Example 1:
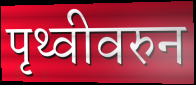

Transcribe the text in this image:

पृथ्वीवरुन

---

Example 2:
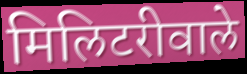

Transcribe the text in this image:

मिलिटरीवाले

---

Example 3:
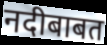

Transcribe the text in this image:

नदीबाबत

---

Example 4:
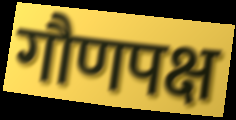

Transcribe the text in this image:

गौणपक्ष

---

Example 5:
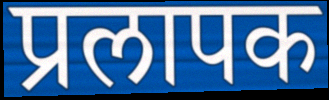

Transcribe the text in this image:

प्रलापक